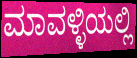
ಮಾವಳ್ಳಿಯಲ್ಲಿ